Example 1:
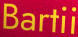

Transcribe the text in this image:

Bartii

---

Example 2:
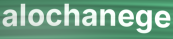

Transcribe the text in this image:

alochanege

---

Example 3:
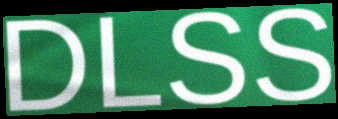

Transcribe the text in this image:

DLSS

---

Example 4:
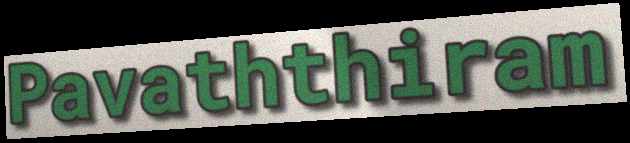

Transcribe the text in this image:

Pavaththiram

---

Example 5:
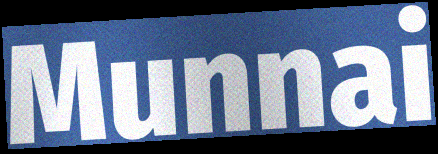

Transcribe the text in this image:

Munnai